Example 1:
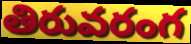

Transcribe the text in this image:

తిరువరంగ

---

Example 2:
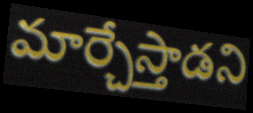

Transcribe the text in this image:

మార్చేస్తాడని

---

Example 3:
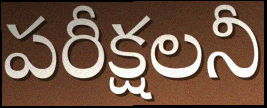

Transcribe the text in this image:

పరీక్షలనీ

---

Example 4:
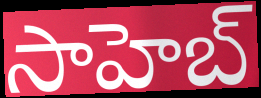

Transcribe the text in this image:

సాహెబ్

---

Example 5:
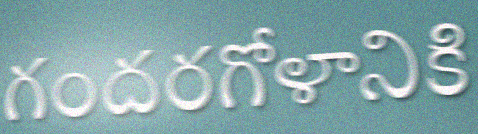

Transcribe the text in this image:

గందరగోళానికి